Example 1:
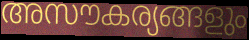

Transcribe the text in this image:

അസൗകര്യങ്ങളും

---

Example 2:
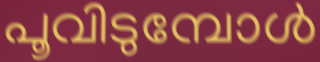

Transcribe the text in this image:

പൂവിടുമ്പോൾ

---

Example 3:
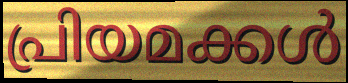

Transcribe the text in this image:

പ്രിയമക്കൾ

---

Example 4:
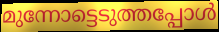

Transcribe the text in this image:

മുന്നോട്ടെടുത്തപ്പോൾ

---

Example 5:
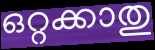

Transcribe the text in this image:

ഒറ്റക്കാതു